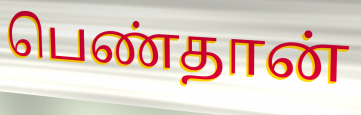
பெண்தான்